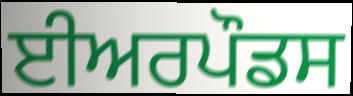
ਈਅਰਪੌਡਸ